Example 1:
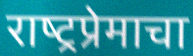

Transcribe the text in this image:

राष्ट्रप्रेमाचा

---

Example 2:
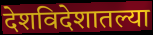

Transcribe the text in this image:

देशविदेशातल्या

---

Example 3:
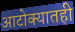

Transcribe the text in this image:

आटोक्यातही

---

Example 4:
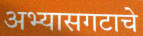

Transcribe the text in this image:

अभ्यासगटाचे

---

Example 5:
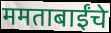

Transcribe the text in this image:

ममताबाईंचे